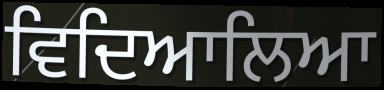
ਵਿਦਿਆਲਿਆ